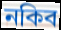
নকিব